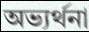
অভ্যৰ্থনা